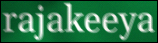
rajakeeya